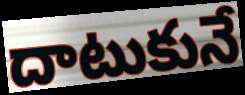
దాటుకునే